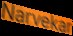
Narvekar